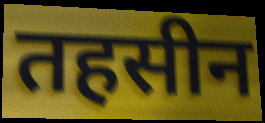
तहसीन